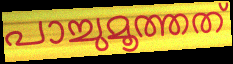
പാച്ചുമൂത്തത്